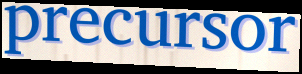
precursor